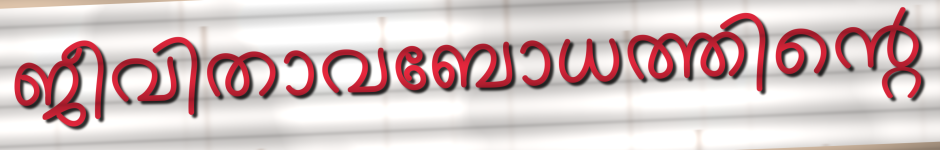
ജീവിതാവബോധത്തിന്റെ